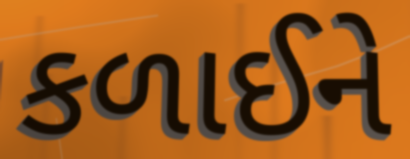
કળાઈને